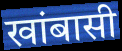
खांबासी